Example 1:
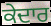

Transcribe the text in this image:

ਕੇਦਾਰ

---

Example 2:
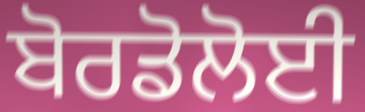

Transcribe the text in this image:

ਬੋਰਡੋਲੋਈ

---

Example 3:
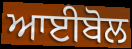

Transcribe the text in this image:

ਆਈਬੋਲ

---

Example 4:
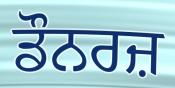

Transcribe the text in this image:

ਡੌਨਰਜ਼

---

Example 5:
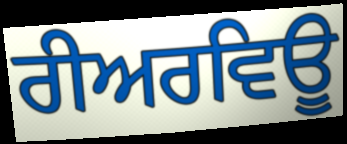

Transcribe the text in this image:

ਰੀਅਰਵਿਊ